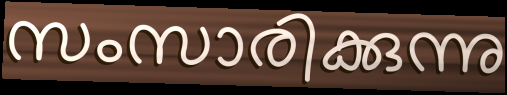
സംസാരിക്കുന്നു